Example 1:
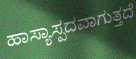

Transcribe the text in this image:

ಹಾಸ್ಯಾಸ್ಪದವಾಗುತ್ತದೆ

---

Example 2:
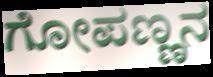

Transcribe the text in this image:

ಗೋಪಣ್ಣನ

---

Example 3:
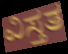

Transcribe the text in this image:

ವಿಸ್ತತ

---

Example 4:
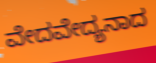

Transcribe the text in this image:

ವೇದವೇದ್ಯನಾದ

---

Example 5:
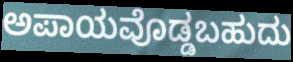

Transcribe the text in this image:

ಅಪಾಯವೊಡ್ಡಬಹುದು